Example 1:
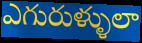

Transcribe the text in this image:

ఎగురుళ్ళులా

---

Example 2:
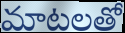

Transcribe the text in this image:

మాటలతో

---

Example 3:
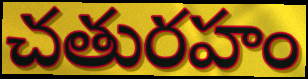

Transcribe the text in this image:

చతురహం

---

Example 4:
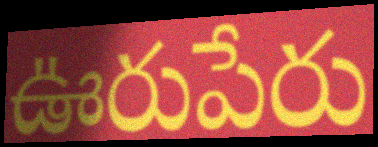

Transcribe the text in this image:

ఊరుపేరు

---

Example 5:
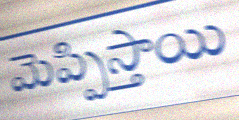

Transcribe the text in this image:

మెప్పిస్తాయి